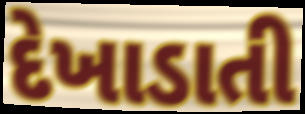
દેખાડાતી